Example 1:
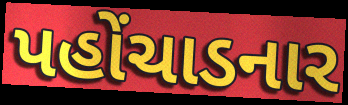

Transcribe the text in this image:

પહોંચાડનાર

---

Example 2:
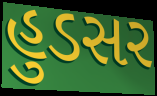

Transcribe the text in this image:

હુડસર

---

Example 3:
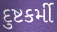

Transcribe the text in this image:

દુષ્ટકર્મી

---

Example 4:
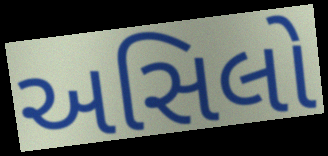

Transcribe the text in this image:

અસિલો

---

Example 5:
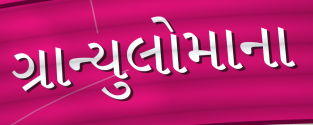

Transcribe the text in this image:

ગ્રાન્યુલોમાના